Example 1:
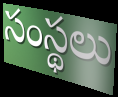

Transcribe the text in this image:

సంస్థలు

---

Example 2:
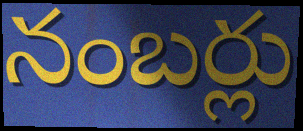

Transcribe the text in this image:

నంబర్లు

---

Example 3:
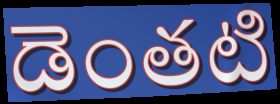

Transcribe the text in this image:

డెంతటి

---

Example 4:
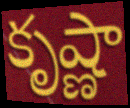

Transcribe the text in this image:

కృష్ణా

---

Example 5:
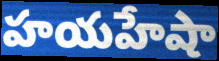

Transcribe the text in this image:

హయహేషా